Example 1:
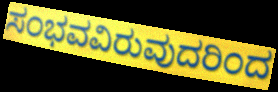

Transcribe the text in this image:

ಸಂಭವವಿರುವುದರಿಂದ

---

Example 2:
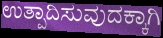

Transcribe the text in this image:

ಉತ್ಪಾದಿಸುವುದಕ್ಕಾಗಿ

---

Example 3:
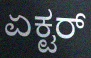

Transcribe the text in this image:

ಏಕ್ಟರ್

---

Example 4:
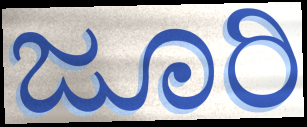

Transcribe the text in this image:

ಜೂರಿ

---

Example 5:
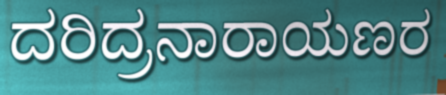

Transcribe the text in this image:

ದರಿದ್ರನಾರಾಯಣರ